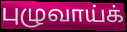
புழுவாய்க்